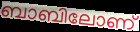
ബാബിലോണ്